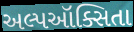
અલ્પઑક્સિતા